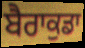
ਬੈਰਾਕੁਡਾ